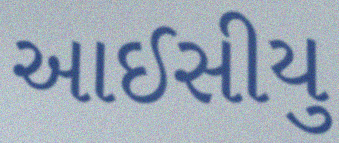
આઈસીયુ